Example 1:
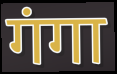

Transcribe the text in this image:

गंगा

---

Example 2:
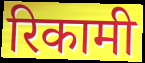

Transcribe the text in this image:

रिकामी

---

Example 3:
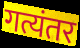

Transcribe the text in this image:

गत्यंतर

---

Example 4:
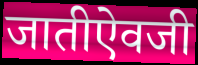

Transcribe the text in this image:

जातीऐवजी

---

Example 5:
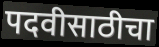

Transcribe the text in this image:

पदवीसाठीचा